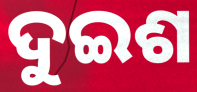
ଦୁଇଶ